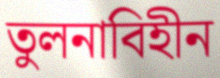
তুলনাবিহীন